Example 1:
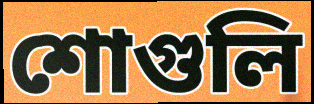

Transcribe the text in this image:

শোগুলি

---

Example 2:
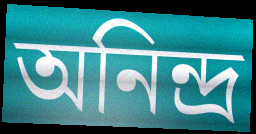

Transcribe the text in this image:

অনিন্দ্র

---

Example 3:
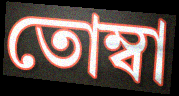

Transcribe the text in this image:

তোম্বা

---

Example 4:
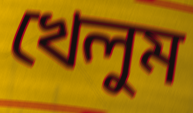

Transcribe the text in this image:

খেলুম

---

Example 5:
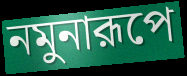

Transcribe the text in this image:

নমুনারূপে